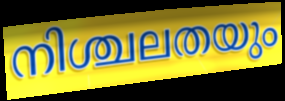
നിശ്ചലതയും